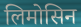
लिमोसिन